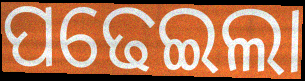
ପଢେଇଲା